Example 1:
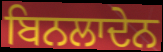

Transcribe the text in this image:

ਬਿਨਲਾਦੇਨ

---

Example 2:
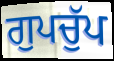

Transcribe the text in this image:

ਗੁਪਚੁੱਪ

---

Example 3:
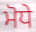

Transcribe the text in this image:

ਮੋਧੇ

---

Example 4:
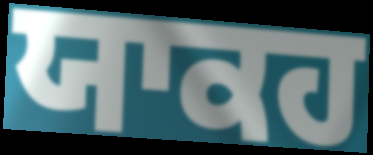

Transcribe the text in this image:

ਯਾਕਹ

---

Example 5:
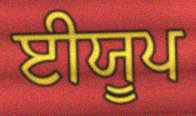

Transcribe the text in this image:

ਈਯੂਪ